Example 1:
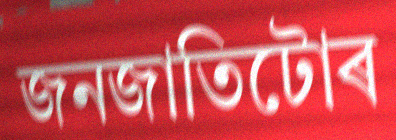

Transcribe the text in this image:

জনজাতিটোৰ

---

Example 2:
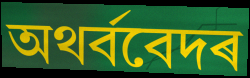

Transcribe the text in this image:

অথৰ্ববেদৰ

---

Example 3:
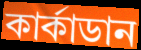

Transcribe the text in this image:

কাৰ্কাডান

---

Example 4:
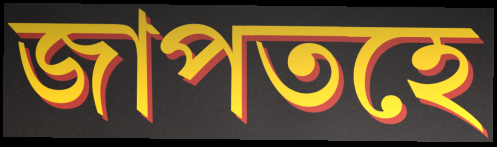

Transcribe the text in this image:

জাপতহে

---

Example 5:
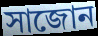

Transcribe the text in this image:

সাজোন